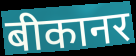
बीकानर